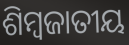
ଶିମ୍ବଜାତୀୟ